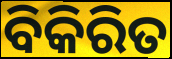
ବିକିରିତ